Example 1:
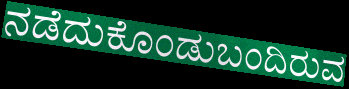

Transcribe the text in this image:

ನಡೆದುಕೊಂಡುಬಂದಿರುವ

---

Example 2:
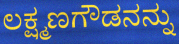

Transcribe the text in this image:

ಲಕ್ಷ್ಮಣಗೌಡನನ್ನು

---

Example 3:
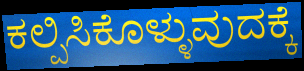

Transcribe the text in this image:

ಕಲ್ಪಿಸಿಕೊಳ್ಳುವುದಕ್ಕೆ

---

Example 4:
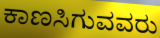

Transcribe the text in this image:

ಕಾಣಸಿಗುವವರು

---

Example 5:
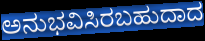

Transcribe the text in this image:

ಅನುಭವಿಸಿರಬಹುದಾದ